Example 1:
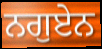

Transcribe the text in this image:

ਨਗੁਏਨ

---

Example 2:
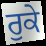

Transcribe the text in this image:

ਰੁਕੇ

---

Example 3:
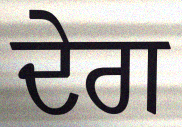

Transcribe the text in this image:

ਦੇਗ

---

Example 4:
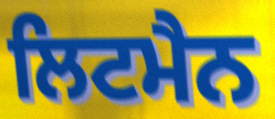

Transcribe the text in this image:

ਲਿਟਮੈਨ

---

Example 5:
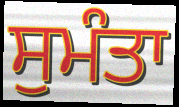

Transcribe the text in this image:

ਸੁਮੰਤਾ